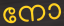
നോ